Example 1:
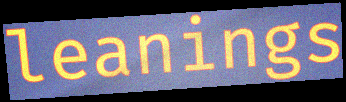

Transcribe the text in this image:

leanings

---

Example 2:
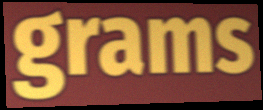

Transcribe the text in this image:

grams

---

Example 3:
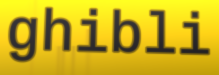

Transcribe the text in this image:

ghibli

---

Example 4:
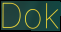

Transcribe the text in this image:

Dok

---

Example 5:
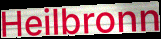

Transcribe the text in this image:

Heilbronn